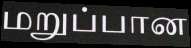
மறுப்பான